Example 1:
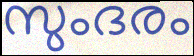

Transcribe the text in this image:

സുംദരം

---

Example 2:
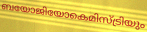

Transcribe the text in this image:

ബയോജിയോകെമിസ്ട്രിയും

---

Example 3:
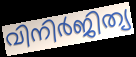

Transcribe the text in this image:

വിനിർജിത്യ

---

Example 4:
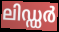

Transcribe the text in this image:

ലിഡ്ഡർ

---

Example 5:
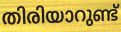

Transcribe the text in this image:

തിരിയാറുണ്ട്